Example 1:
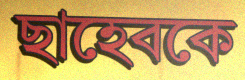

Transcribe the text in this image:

ছাহেবকে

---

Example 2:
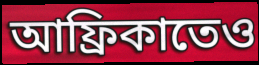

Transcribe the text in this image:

আফ্রিকাতেও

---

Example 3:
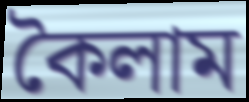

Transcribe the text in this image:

কৈলাম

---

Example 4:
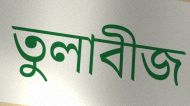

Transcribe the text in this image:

তুলাবীজ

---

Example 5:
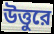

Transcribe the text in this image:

উত্তুরে